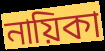
নায়িকা